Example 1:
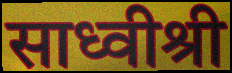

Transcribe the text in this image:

साध्वीश्री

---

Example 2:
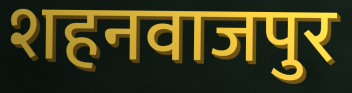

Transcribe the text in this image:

शहनवाजपुर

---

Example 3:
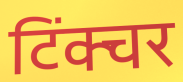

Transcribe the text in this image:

टिंक्चर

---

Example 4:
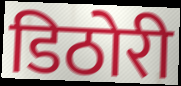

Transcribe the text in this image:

डिठोरी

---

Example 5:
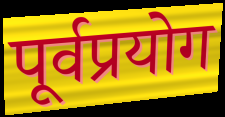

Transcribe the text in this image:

पूर्वप्रयोग